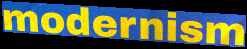
modernism